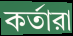
কর্তারা